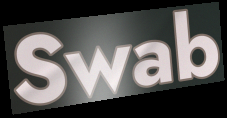
Swab